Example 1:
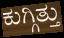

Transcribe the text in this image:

ಕುಗ್ಗಿತ್ತು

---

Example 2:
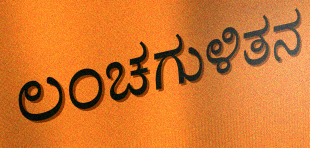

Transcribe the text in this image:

ಲಂಚಗುಳಿತನ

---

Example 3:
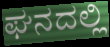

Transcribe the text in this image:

ಘನದಲ್ಲಿ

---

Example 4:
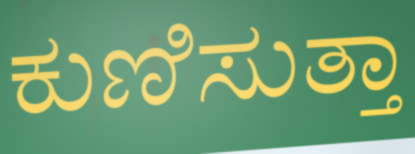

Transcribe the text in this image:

ಕುಣಿಸುತ್ತಾ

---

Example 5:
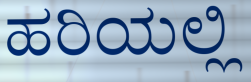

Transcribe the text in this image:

ಹರಿಯಲ್ಲಿ